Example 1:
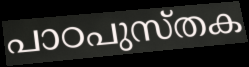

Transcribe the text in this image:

പാഠപുസ്തക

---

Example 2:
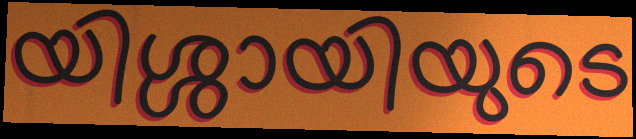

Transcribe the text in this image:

യിശ്ശായിയുടെ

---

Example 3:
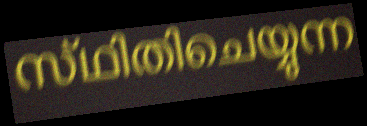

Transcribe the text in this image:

സ്‌ഥിതിചെയ്യുന്ന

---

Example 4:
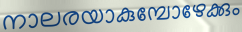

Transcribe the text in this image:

നാലരയാകുമ്പോഴേക്കും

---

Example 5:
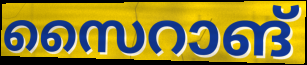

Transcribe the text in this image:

സൈറാങ്